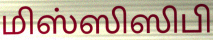
மிஸ்ஸிஸிபி